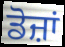
ਡੋਜ਼ਾਂ